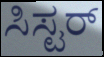
ಸಿಸ್ಟರ್